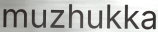
muzhukka